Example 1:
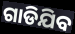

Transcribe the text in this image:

ଗାଡିଯିବ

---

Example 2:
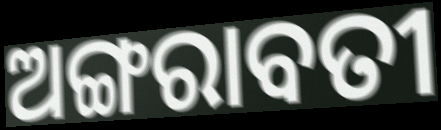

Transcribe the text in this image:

ଅଙ୍ଗରାବତୀ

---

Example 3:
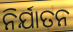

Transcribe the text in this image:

ନିର୍ଯାତନ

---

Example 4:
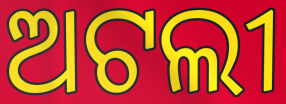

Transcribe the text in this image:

ଅଟଲୀ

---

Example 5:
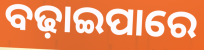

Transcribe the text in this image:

ବଢ଼ାଇପାରେ